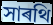
সাৰথি